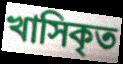
খাসিকৃত